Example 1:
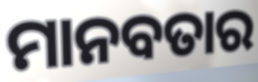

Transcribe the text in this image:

ମାନବତାର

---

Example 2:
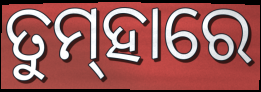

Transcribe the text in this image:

ତୁମ୍‌ହାରେ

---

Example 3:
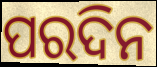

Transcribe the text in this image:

ପରଦିନ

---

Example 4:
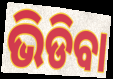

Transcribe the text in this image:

ଭିଡିବା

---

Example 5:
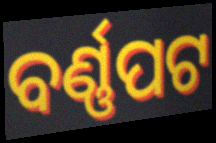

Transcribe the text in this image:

ବର୍ଣ୍ଣପଟ